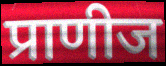
प्राणीज